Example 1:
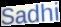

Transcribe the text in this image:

Sadhi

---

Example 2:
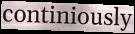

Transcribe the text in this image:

continiously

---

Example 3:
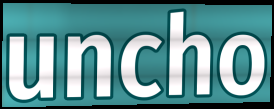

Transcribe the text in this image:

uncho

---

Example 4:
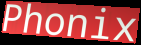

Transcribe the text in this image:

Phonix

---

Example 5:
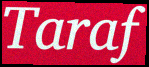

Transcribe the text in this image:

Taraf